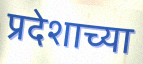
प्रदेशाच्या